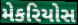
મેકરિયોસ